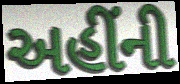
અહીંની